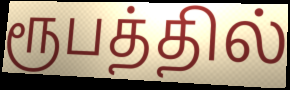
ரூபத்தில்